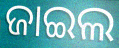
ଜାଇଲ